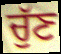
ਚੁੱਣ